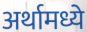
अर्थामध्ये